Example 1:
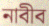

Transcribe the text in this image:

নাবীব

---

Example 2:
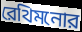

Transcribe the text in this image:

রেথিমনোর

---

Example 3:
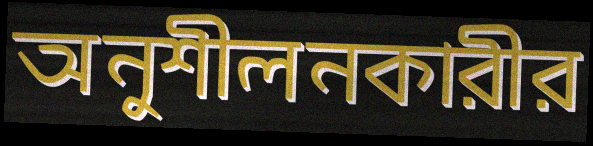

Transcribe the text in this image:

অনুশীলনকারীর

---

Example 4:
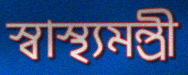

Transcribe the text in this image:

স্বাস্থ্যমন্ত্রী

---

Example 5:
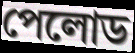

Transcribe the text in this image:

পেলোড